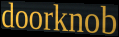
doorknob